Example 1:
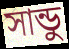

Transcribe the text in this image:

সান্ডু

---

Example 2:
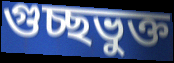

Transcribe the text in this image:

গুচ্ছভুক্ত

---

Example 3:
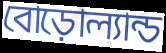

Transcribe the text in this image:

বোড়োল্যান্ড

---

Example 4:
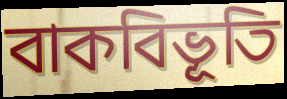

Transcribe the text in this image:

বাকবিভূতি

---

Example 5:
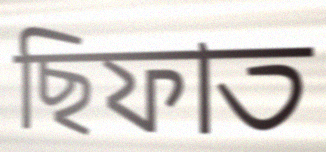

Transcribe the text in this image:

ছিফাত